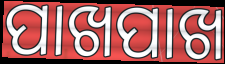
ପାଖପାଖ